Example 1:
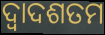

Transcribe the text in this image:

ଦ୍ୱାଦଶତମ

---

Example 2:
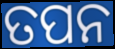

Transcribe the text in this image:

ତପନ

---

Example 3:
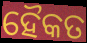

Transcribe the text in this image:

ହୈକତ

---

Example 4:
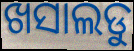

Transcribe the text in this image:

ଖସାଲଡୁ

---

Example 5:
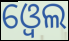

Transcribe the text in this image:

ଓ୍ବେଲ